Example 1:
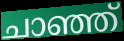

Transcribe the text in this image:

ചാഞ്ഞ്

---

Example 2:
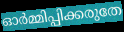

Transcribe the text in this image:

ഓർമ്മിപ്പിക്കരുതേ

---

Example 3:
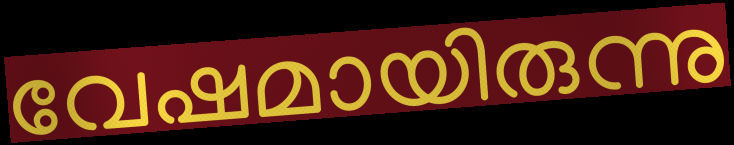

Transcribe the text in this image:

വേഷമായിരുന്നു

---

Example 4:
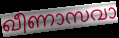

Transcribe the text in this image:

ഖീണാസവാ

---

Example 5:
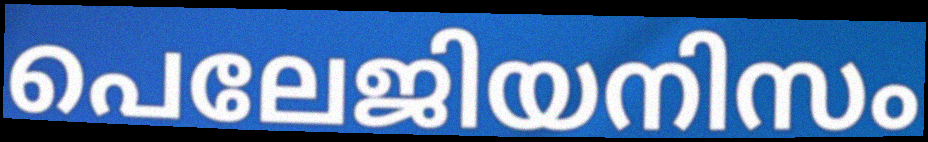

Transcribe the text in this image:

പെലേജിയനിസം